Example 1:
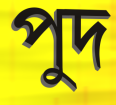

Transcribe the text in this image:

পুদ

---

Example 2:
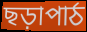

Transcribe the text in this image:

ছড়াপাঠ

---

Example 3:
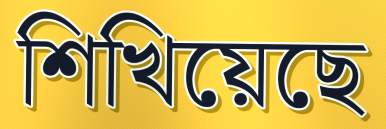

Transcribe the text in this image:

শিখিয়েছে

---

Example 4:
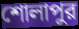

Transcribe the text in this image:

শোলাপুর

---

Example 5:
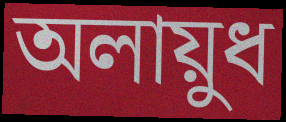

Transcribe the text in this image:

অলায়ুধ